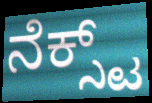
ನೆಕ್ಸ್ಟ್